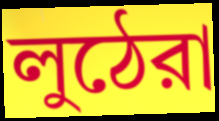
লুঠেরা